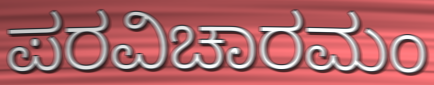
ಪರವಿಚಾರಮಂ